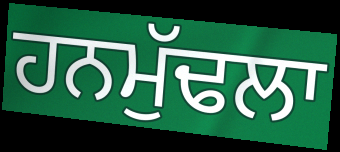
ਹਨਮੁੱਢਲਾ